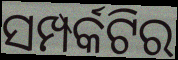
ସମ୍ପର୍କଟିର